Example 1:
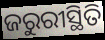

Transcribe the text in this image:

ଜରୁରୀସ୍ଥିତି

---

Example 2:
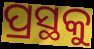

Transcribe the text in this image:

ପ୍ରସ୍ଥକୁ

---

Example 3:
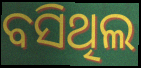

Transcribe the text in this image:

ବସିଥିଲ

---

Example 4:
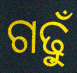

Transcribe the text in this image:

ଗଢ଼ୁଁ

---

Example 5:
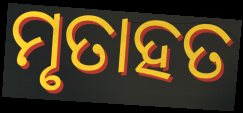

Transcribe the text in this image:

ମୃତାହତ